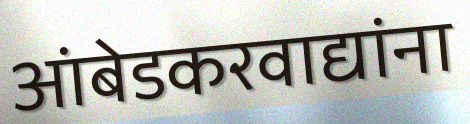
आंबेडकरवाद्यांना